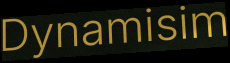
Dynamisim